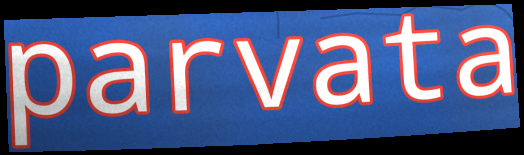
parvata